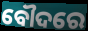
ବୌଦରେ